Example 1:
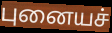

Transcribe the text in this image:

புனையச்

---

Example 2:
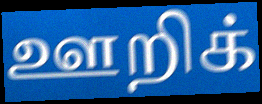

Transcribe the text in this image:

ஊறிக்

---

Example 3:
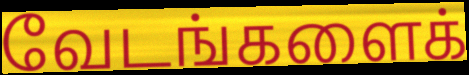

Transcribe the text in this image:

வேடங்களைக்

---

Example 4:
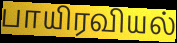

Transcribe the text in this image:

பாயிரவியல்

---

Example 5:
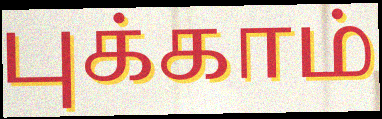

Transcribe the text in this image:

புக்காம்